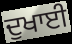
ਦੁਖਾਈ